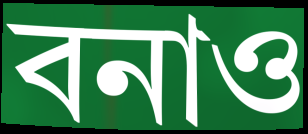
বনাও